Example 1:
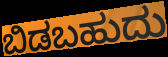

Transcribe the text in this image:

ಬಿಡಬಹುದು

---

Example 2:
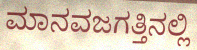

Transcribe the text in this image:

ಮಾನವಜಗತ್ತಿನಲ್ಲಿ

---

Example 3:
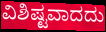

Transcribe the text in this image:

ವಿಶಿಷ್ಟವಾದದು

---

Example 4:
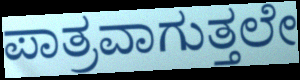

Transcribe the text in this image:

ಪಾತ್ರವಾಗುತ್ತಲೇ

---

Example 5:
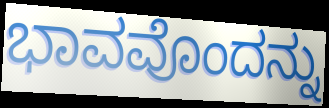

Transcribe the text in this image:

ಭಾವವೊಂದನ್ನು